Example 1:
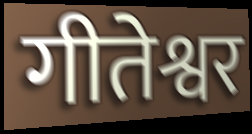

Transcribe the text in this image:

गीतेश्वर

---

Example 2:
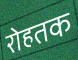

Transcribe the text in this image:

रोहतक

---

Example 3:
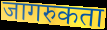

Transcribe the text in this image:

जागरुकता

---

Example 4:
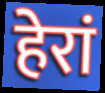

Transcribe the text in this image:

हेरां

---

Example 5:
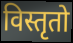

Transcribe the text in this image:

विस्तृतो